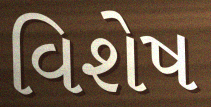
વિશેષ